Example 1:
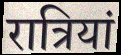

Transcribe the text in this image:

रात्रियां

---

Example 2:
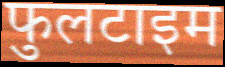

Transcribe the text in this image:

फुलटाइम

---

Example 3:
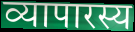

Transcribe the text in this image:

व्यापारस्य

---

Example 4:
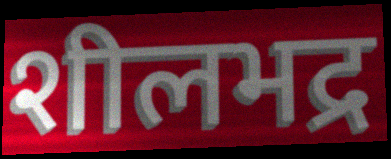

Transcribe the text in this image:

शीलभद्र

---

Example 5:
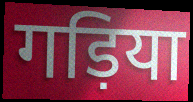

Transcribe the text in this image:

गड़िया